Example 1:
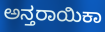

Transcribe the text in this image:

ಅನ್ತರಾಯಿಕಾ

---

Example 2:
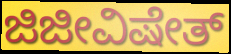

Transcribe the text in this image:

ಜಿಜೀವಿಷೇತ್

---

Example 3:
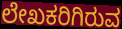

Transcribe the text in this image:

ಲೇಖಕರಿಗಿರುವ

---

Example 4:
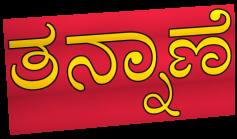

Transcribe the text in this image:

ತನ್ನಾಣೆ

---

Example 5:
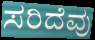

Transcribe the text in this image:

ಸರಿದೆವು